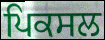
ਪਿਕਸਲ